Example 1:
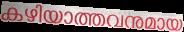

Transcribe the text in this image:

കഴിയാത്തവനുമായ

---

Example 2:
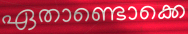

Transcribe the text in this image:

ഏതാണ്ടൊക്കെ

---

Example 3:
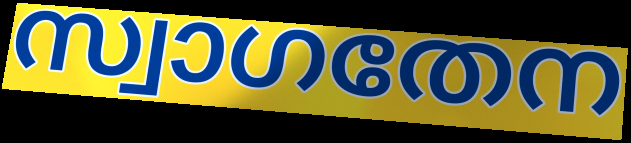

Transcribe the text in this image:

സ്വാഗതേന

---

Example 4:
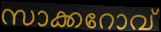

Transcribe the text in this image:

സാക്കറോവ്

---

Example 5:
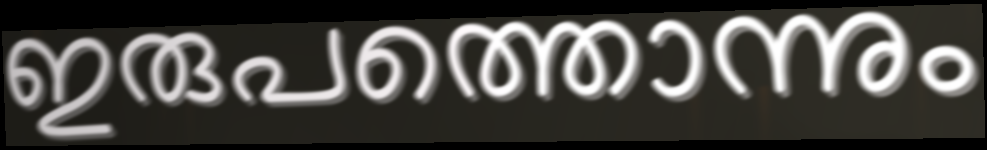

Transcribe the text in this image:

ഇരുപത്തൊന്നും